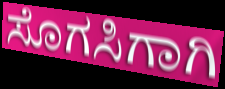
ಸೊಗಸಿಗಾಗಿ